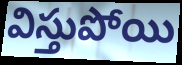
విస్తుపోయి